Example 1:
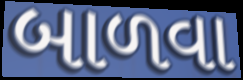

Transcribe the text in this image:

બાળવા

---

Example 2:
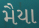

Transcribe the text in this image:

મૈયા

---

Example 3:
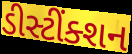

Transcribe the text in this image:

ડીસ્ટીંક્શન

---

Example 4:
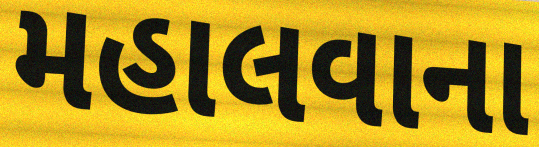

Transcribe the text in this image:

મહાલવાના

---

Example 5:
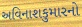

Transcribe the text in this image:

અવિનાશકુમારનો